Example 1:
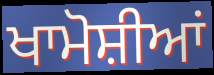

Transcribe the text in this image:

ਖਾਮੋਸ਼ੀਆਂ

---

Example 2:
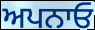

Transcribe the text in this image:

ਅਪਨਾਓ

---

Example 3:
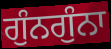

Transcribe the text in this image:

ਗੁੰਨਗੁੰਨਾ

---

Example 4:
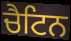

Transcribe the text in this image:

ਚੈਟਿਨ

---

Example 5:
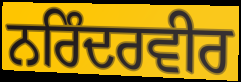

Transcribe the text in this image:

ਨਰਿੰਦਰਵੀਰ